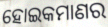
ହୋଇକମାଣର